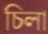
চিলা